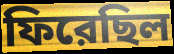
ফিরেছিল